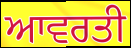
ਆਵਰਤੀ